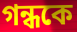
গন্ধকে